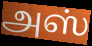
அஸ்